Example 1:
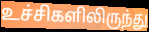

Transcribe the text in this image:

உச்சிகளிலிருந்து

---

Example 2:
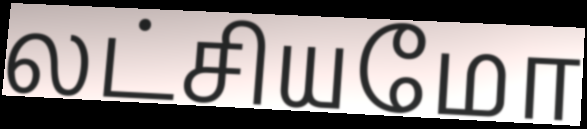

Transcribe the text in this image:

லட்சியமோ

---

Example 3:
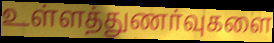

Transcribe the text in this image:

உள்ளத்துணர்வுகளை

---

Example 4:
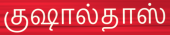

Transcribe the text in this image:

குஷால்தாஸ்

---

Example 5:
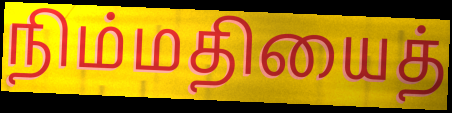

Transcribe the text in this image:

நிம்மதியைத்